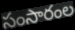
సంసారంల